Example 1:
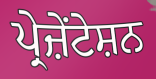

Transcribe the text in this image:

ਪ੍ਰੇਜ਼ੇਂਟੇਸ਼ਨ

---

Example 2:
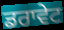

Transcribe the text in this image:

ਡਰਾਵੇਟ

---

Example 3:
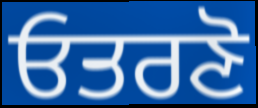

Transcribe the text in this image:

ਓਤਰਣੋ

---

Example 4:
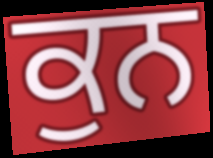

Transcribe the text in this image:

ਕੁਨ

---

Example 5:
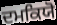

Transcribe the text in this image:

ਦਮਕਿਯੋ